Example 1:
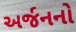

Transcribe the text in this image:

અર્જનનો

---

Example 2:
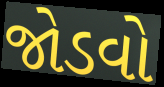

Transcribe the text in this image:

જોડવો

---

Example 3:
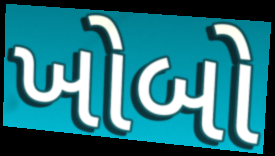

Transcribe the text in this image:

ખોબો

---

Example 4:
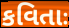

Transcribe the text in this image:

કવિતાઃ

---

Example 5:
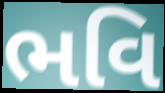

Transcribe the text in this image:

ભવિ